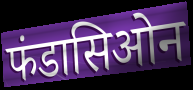
फंडासिओन